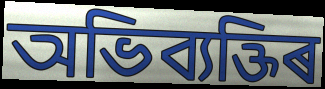
অভিব্যক্তিৰ